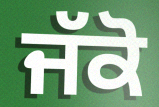
ਜੱਕੋ